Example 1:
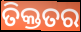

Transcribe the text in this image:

ତିକ୍ତତର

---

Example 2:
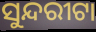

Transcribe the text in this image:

ସୁନ୍ଦରୀଟା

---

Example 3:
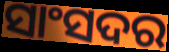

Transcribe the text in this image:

ସାଂସଦର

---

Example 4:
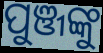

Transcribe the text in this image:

ପୁଞ୍ଜଙ୍କୁ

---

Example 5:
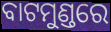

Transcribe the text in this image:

ବାଟମୁଣ୍ଡରେ